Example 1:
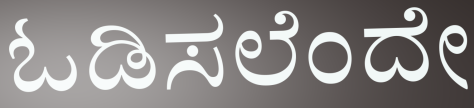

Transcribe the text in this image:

ಓಡಿಸಲೆಂದೇ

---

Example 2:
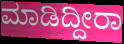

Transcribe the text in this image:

ಮಾಡಿದ್ದೀರಾ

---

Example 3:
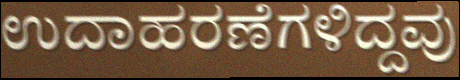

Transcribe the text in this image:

ಉದಾಹರಣೆಗಳಿದ್ದವು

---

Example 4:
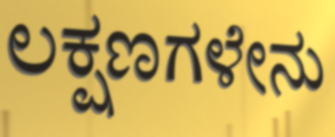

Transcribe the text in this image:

ಲಕ್ಷಣಗಳೇನು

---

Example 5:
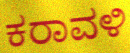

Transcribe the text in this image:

ಕರಾವಳಿ